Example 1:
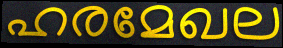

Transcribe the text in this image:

ഹരമേഖല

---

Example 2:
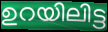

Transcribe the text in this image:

ഉറയിലിട്ട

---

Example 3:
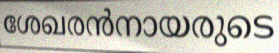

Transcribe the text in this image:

ശേഖരൻനായരുടെ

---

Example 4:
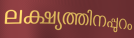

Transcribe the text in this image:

ലക്ഷ്യത്തിനപ്പുറം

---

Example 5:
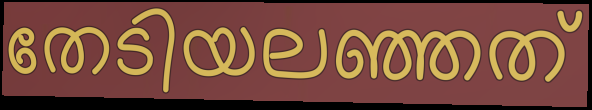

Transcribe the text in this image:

തേടിയലഞ്ഞത്